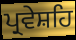
ਪ੍ਰਵੇਸ਼ਹਿ